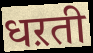
धऱती